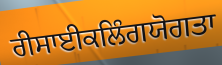
ਰੀਸਾਈਕਲਿੰਗਯੋਗਤਾ